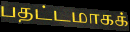
பதட்டமாகக்